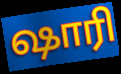
ஷாரி